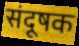
संदूषक